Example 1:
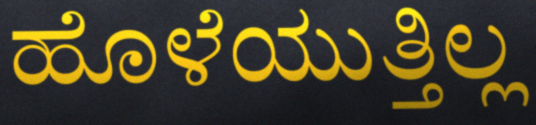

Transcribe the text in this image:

ಹೊಳೆಯುತ್ತಿಲ್ಲ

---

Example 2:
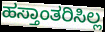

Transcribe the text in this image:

ಹಸ್ತಾಂತರಿಸಿಲ್ಲ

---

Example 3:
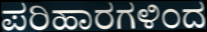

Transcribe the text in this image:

ಪರಿಹಾರಗಳಿಂದ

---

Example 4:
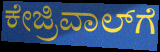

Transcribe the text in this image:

ಕೇಜ್ರಿವಾಲ್‍ಗೆ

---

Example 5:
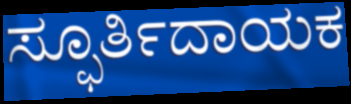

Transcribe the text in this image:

ಸ್ಫೂರ್ತಿದಾಯಕ